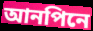
আনপিনে